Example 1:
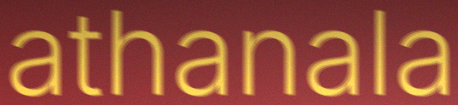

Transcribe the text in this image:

athanala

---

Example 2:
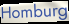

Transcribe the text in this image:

Homburg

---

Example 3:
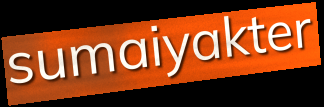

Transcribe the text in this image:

sumaiyakter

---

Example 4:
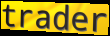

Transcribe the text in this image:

trader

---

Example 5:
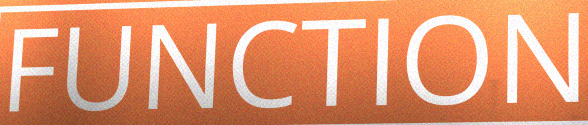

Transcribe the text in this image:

FUNCTION